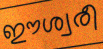
ഈശ്വരീ